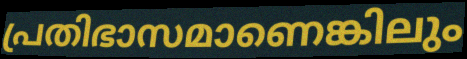
പ്രതിഭാസമാണെങ്കിലും